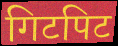
गिटपिट